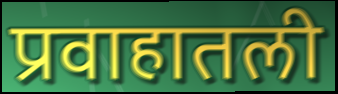
प्रवाहातली